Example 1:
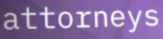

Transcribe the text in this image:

attorneys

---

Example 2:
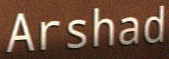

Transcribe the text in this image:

Arshad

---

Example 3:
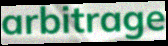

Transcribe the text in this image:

arbitrage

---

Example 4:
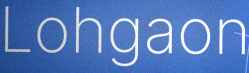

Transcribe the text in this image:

Lohgaon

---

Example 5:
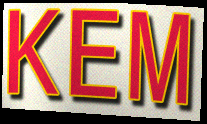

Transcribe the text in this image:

KEM